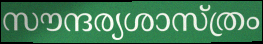
സൗന്ദര്യശാസ്ത്രം